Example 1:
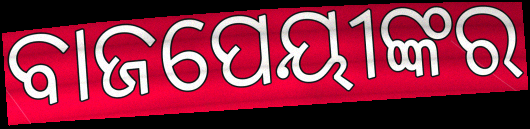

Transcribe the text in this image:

ବାଜପେୟୀଙ୍କର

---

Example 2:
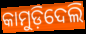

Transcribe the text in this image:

କାମୁଡ଼ିଦେଲି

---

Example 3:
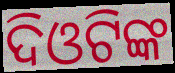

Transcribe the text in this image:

ଦିଓଟିଙ୍କ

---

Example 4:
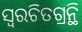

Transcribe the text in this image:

ସ୍ଵରଚିତଗ୍ରନ୍ଥି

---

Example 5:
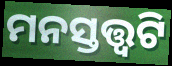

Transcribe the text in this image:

ମନସ୍ତତ୍ତ୍ୱଟି